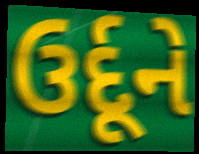
ઉર્દૂને